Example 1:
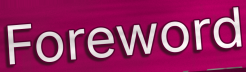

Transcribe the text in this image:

Foreword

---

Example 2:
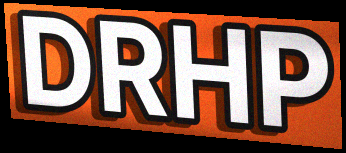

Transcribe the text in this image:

DRHP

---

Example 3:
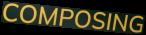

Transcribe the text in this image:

COMPOSING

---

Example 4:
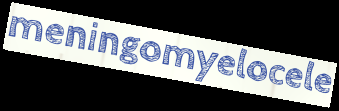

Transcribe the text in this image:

meningomyelocele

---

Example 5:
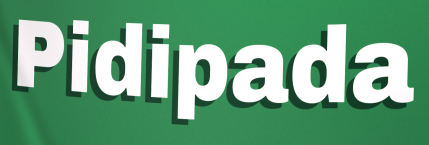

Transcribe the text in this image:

Pidipada